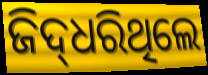
ଜିଦ୍‌ଧରିଥିଲେ